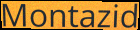
Montazid